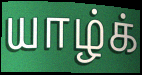
யாழ்க்